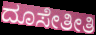
ದೂಸೇತೀತಿ